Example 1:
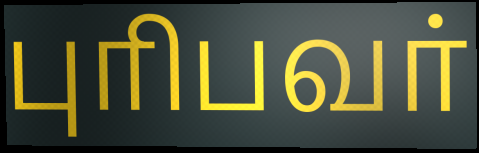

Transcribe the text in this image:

புரிபவர்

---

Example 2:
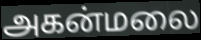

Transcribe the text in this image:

அகன்மலை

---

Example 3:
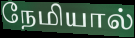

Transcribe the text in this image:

நேமியால்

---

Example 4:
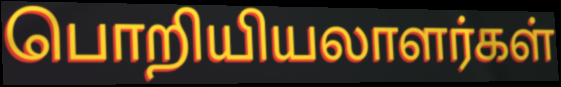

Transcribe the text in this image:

பொறியியலாளர்கள்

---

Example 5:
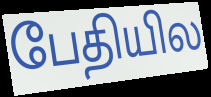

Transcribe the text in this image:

பேதியில